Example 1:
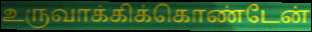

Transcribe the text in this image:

உருவாக்கிக்கொண்டேன்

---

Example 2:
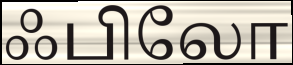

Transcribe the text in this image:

ஃபிலோ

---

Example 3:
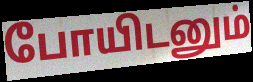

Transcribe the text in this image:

போயிடனும்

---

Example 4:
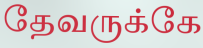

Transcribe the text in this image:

தேவருக்கே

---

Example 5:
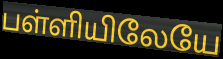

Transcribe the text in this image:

பள்ளியிலேயே